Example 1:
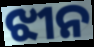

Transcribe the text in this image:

ଝୀନ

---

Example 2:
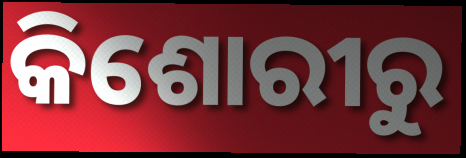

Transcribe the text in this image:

କିଶୋରୀରୁ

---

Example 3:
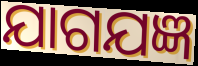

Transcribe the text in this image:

ଯାଗଯଜ୍ଞ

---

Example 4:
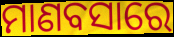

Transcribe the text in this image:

ମାଣବସାରେ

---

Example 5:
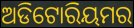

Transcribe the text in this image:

ଅଡିଟୋରିୟମର